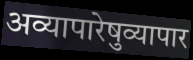
अव्यापारेषुव्यापार